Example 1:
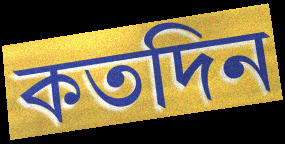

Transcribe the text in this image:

কতদিন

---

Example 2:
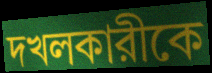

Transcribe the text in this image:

দখলকারীকে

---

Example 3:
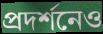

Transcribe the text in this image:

প্রদর্শনেও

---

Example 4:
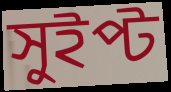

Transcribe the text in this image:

সুইপ্ট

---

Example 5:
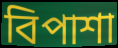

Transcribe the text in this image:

বিপাশা